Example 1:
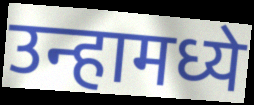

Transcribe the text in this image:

उन्हामध्ये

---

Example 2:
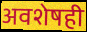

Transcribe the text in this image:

अवशेषही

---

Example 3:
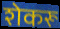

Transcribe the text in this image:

शेकरू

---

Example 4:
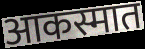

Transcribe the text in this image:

आकस्मात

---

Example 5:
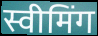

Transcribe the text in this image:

स्वीमिंग